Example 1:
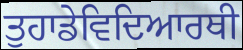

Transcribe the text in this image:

ਤੁਹਾਡੇਵਿਦਿਆਰਥੀ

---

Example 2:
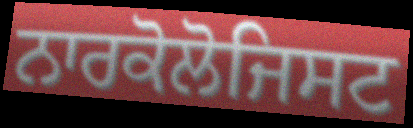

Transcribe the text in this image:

ਨਾਰਕੋਲੋਜਿਸਟ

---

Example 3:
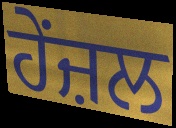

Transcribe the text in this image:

ਹੇਂਜ਼ਲ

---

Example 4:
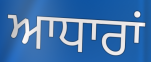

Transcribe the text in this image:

ਆਧਾਰਾਂ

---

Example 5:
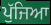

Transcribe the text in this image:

ਪੁੱਜਿਆ